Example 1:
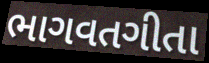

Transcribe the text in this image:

ભાગવતગીતા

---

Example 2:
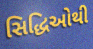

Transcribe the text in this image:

સિદ્ધિઓથી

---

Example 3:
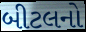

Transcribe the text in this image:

બીટલનો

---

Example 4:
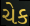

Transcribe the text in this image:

ચેક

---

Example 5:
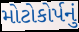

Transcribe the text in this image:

મોટોકોર્પનું